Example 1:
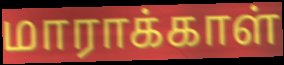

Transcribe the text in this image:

மாராக்காள்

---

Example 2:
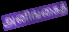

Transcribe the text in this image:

அனிங்கைத்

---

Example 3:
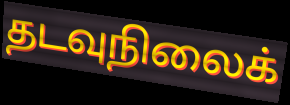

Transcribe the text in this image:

தடவுநிலைக்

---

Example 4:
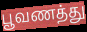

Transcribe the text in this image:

பூவணத்து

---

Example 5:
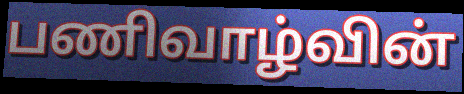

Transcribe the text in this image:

பணிவாழ்வின்